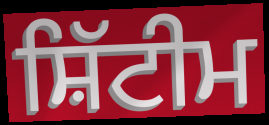
ਸ਼ਿੱਟੀਮ